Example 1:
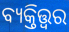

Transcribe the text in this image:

ବ୍ୟକ୍ତିତ୍ତ୍ଵର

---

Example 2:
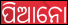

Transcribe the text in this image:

ପିଆନୋ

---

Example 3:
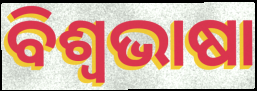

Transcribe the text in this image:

ବିଶ୍ୱଭାଷା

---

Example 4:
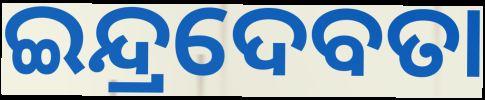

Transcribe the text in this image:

ଇନ୍ଦ୍ରଦେବତା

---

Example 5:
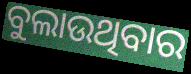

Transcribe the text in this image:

ବୁଲାଉଥିବାର